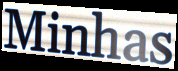
Minhas